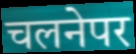
चलनेपर